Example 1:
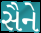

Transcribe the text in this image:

સૈને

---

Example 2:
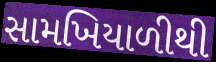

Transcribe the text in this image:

સામખિયાળીથી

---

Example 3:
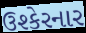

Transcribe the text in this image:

ઉશ્કેરનાર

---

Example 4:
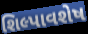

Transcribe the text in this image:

શિલ્પાવશેષ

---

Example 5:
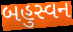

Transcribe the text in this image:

બહુસ્વન